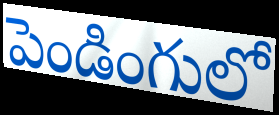
పెండింగులో